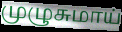
முழுசுமாய்